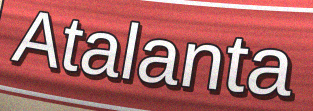
Atalanta